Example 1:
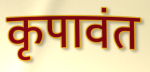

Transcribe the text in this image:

कृपावंत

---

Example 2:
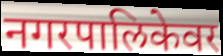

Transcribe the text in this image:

नगरपालिकेवर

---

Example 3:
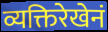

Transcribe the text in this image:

व्यक्तिरेखेनं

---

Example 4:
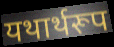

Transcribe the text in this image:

यथार्थरूप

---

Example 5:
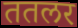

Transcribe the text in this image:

ततलर